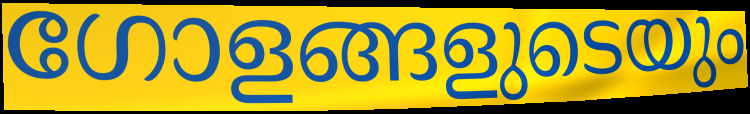
ഗോളങ്ങളുടെയും